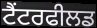
ਟੈਂਟਰਫੀਲਡ